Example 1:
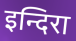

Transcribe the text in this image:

इन्दिरा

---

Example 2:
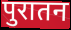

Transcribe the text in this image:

पुरातन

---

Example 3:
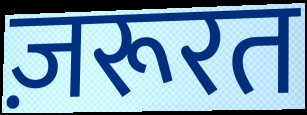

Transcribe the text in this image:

ज़रूरत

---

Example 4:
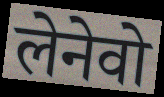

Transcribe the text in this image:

लेनेवो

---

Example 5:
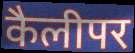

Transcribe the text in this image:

कैलीपर